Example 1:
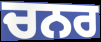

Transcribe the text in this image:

ਚਨਰ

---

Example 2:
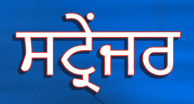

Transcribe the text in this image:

ਸਟ੍ਰੇਂਜਰ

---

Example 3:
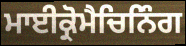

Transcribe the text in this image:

ਮਾਈਕ੍ਰੋਮੈਚਿਨਿੰਗ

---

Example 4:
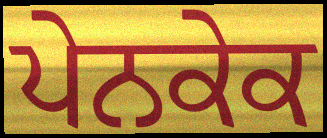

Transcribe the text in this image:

ਪੇਨਕੇਕ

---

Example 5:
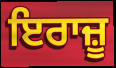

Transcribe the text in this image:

ਇਰਾਜ਼ੂ